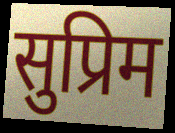
सुप्रिम